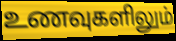
உணவுகளிலும்